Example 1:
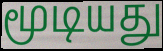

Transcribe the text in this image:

மூடியது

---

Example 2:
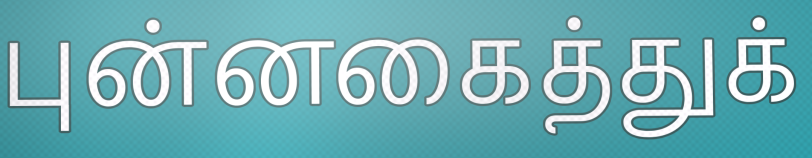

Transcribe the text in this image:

புன்னகைத்துக்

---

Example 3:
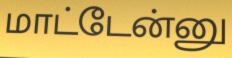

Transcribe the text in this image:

மாட்டேன்னு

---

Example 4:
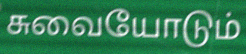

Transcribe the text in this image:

சுவையோடும்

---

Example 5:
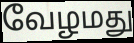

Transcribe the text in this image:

வேழமது